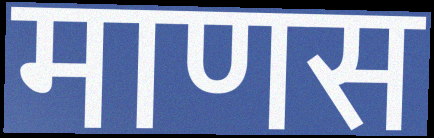
माणस